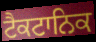
ਟੈਕਟਾਨਿਕ